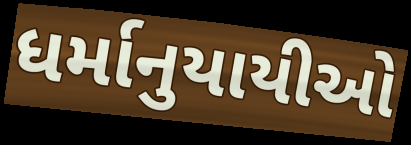
ધર્માનુયાયીઓ